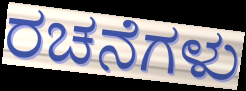
ರಚನೆಗಳು